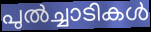
പുൽച്ചാടികൾ